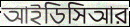
আইডিসিআর